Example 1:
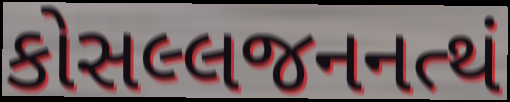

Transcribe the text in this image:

કોસલ્લજનનત્થં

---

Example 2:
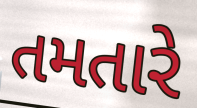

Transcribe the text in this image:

તમતારે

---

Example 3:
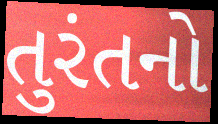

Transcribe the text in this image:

તુરંતનો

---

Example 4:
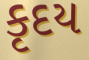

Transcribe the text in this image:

કૃદય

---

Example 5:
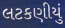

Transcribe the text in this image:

લટકણીયું